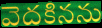
వెదకినను